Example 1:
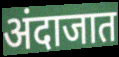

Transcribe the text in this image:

अंदाजात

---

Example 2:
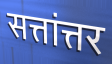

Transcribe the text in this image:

सत्तांत्तर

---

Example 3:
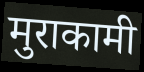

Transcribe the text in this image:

मुराकामी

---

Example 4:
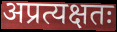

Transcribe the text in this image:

अप्रत्यक्षतः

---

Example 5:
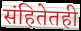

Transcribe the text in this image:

संहितेतही